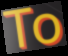
To